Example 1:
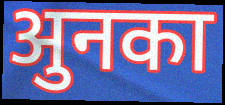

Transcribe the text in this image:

अुनका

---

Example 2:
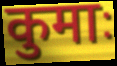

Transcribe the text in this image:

कुमाः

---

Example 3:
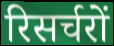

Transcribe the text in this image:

रिसर्चरों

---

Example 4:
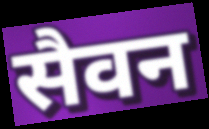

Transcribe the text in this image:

सैवन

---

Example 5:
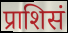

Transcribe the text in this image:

प्राशिसं